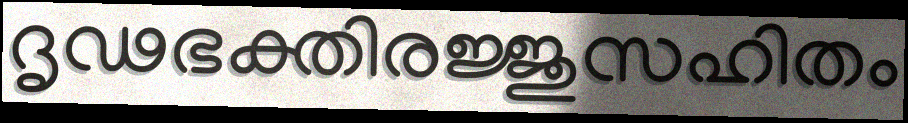
ദൃഢഭക്തിരജ്ജുസഹിതം